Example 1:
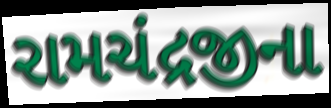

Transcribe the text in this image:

રામચંદ્રજીના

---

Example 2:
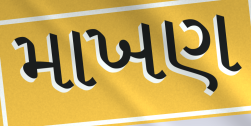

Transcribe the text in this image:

માખણ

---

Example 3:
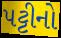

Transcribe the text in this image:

પટ્ટીનો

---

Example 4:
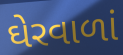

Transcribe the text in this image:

ઘેરવાળાં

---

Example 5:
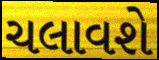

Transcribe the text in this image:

ચલાવશે